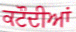
ਕਟੌਦੀਆਂ